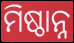
ମିଷ୍ଠାନ୍ନ